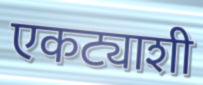
एकट्याशी